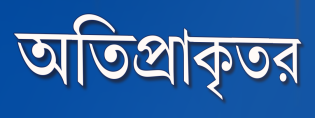
অতিপ্রাকৃতর